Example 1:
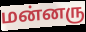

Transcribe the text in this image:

மன்னரு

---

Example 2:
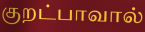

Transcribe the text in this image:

குறட்பாவால்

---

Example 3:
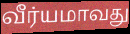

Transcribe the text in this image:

வீர்யமாவது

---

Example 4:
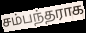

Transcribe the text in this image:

சம்பந்தராக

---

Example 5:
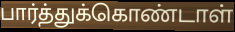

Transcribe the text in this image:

பார்த்துக்கொண்டாள்